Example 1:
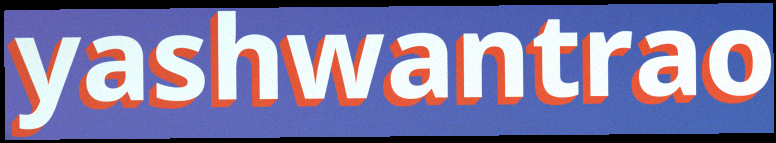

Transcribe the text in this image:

yashwantrao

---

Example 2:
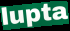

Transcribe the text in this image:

lupta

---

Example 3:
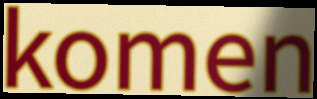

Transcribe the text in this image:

komen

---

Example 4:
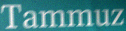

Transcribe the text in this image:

Tammuz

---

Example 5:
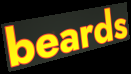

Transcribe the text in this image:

beards